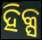
ହିକ୍ସ